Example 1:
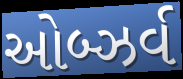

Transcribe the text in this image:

ઓબ્ઝર્વ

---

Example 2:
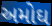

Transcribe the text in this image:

અમોઘ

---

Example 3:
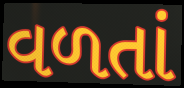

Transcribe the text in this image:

વળતાં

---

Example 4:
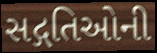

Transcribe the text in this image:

સદ્ગતિઓની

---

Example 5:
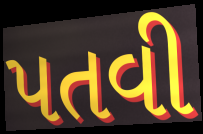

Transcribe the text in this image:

પતવી